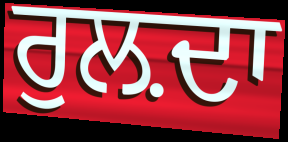
ਰੁਲ਼ਦਾ